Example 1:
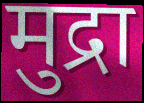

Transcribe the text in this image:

मुद्रा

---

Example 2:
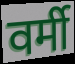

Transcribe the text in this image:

वर्मी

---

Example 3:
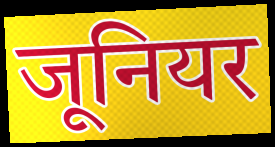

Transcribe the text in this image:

जूनियर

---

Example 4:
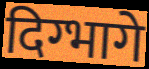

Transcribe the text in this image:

दिग्भागे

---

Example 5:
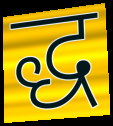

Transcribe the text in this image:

द्ध